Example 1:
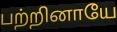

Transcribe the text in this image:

பற்றினாயே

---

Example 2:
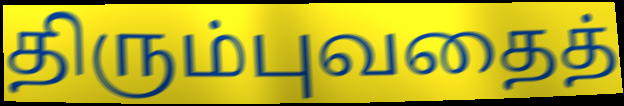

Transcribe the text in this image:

திரும்புவதைத்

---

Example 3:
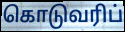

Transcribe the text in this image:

கொடுவரிப்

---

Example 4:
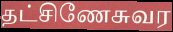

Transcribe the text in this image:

தட்சிணேசுவர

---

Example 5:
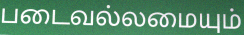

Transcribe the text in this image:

படைவல்லமையும்